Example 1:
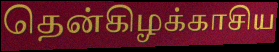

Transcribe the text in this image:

தென்கிழக்காசிய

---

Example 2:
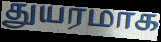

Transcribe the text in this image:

துயரமாக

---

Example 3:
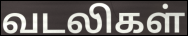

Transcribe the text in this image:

வடலிகள்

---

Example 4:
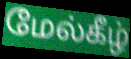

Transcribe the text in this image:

மேல்கீழ்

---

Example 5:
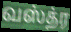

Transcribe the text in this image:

வஸ்த்ர